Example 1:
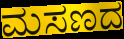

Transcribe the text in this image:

ಮಸಣದ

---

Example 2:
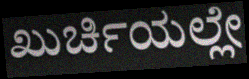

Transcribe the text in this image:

ಖುರ್ಚಿಯಲ್ಲೇ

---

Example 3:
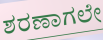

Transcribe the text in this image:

ಶರಣಾಗಲೇ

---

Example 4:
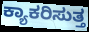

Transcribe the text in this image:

ಕ್ಯಾಕರಿಸುತ್ತ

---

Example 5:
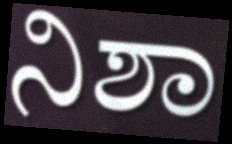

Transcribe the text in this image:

ನಿಶಾ